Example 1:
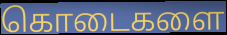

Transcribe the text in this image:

கொடைகளை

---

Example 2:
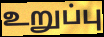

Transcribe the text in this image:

உறுப்பு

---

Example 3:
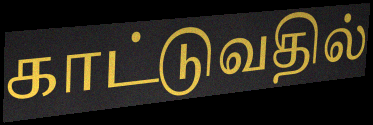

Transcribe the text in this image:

காட்டுவதில்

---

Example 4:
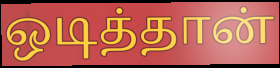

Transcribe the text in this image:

ஒடித்தான்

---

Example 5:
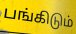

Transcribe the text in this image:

பங்கிடும்